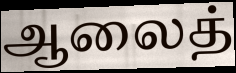
ஆலைத்